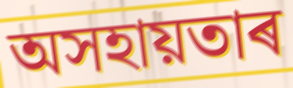
অসহায়তাৰ